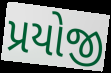
પ્રયોજી